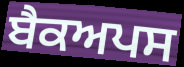
ਬੈਕਅਪਸ